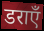
डराएँ